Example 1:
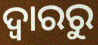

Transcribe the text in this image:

ଦ୍ଵାରରୁ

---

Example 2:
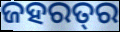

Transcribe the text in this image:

ଜହରତ୍‌ର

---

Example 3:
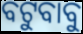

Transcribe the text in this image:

ବଟୁବାବୁ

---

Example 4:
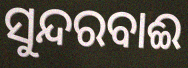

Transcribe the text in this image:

ସୁନ୍ଦରବାଈ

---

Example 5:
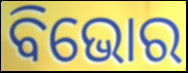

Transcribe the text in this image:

ବିଭୋର